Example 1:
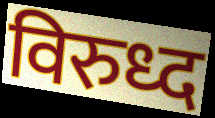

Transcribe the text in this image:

विरुध्द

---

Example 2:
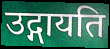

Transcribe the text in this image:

उद्गायति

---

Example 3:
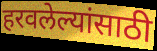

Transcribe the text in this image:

हरवलेल्यांसाठी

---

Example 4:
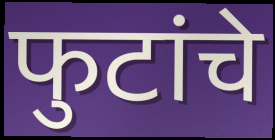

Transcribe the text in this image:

फुटांचे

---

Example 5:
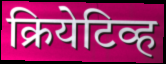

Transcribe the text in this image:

क्रियेटिव्ह